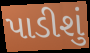
પાડીશું